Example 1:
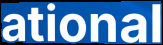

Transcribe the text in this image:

ational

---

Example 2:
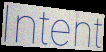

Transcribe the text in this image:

Intent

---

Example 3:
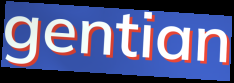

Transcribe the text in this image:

gentian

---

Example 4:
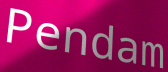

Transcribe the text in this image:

Pendam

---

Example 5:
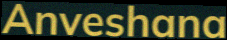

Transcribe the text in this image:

Anveshana